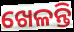
ଖେଳନ୍ତି